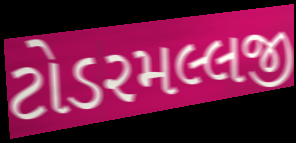
ટોડરમલ્લજી